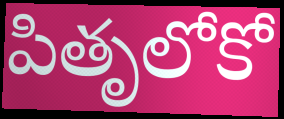
పితృలోకో